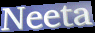
Neeta